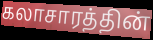
கலாசாரத்தின்